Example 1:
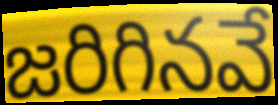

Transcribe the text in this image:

జరిగినవే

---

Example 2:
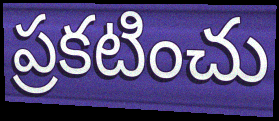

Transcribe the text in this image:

ప్రకటించు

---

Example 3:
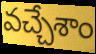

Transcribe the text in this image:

వచ్చేశాం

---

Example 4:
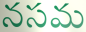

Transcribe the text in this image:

నసమ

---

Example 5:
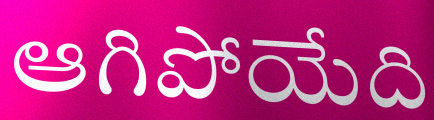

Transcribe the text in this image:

ఆగిపోయేది